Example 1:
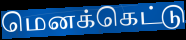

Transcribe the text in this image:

மெனக்கெட்டு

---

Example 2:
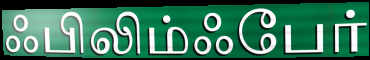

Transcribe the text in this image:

ஃபிலிம்ஃபேர்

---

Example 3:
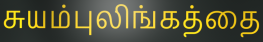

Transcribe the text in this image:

சுயம்புலிங்கத்தை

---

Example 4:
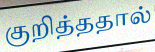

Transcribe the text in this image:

குறித்ததால்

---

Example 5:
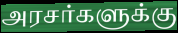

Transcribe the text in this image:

அரசர்களுக்கு